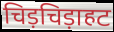
चिड़चिड़ाहट